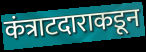
कंत्राटदाराकडून